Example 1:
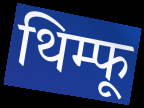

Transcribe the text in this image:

थिम्फू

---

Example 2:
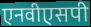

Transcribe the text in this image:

एनवीएसपी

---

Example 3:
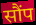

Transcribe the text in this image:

सौंप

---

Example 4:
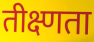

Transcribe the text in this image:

तीक्ष्णता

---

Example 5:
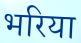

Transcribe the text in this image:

भरिया